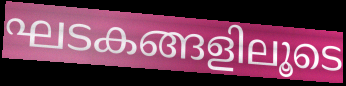
ഘടകങ്ങളിലൂടെ